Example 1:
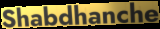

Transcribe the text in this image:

Shabdhanche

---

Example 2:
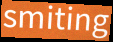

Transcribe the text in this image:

smiting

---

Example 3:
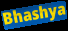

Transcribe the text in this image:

Bhashya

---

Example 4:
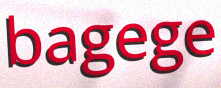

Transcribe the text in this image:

bagege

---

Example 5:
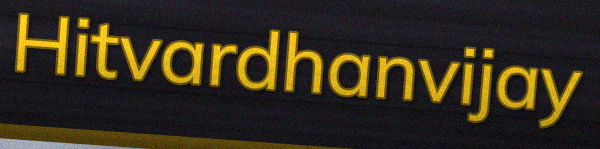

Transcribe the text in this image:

Hitvardhanvijay